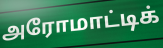
அரோமாட்டிக்